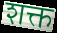
शक्त